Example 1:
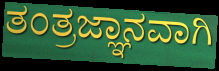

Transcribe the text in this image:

ತಂತ್ರಜ್ಞಾನವಾಗಿ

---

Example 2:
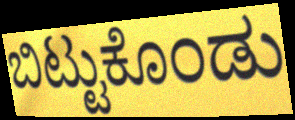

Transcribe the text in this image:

ಬಿಟ್ಟುಕೊಂಡು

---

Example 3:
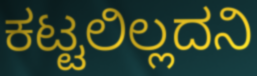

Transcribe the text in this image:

ಕಟ್ಟಲಿಲ್ಲದನಿ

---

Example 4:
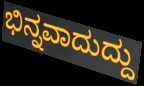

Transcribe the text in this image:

ಭಿನ್ನವಾದುದ್ದು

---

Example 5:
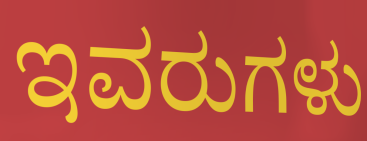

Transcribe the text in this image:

ಇವರುಗಳು